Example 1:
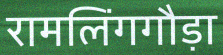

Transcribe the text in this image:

रामलिंगगौड़ा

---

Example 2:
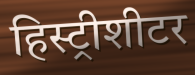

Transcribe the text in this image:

हिस्ट्रीशीटर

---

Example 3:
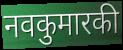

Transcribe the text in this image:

नवकुमारकी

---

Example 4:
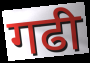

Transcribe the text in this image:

गढी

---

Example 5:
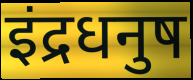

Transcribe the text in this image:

इंद्रधनुष